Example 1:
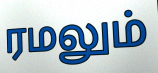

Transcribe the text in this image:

ரமலும்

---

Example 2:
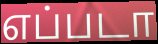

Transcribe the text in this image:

எப்படா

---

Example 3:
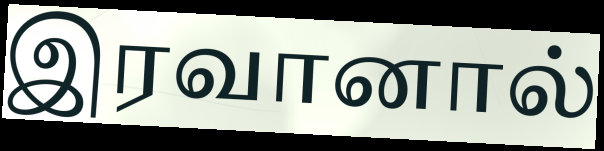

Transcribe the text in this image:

இரவானால்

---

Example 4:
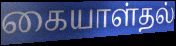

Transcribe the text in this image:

கையாள்தல்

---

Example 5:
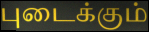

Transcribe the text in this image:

புடைக்கும்